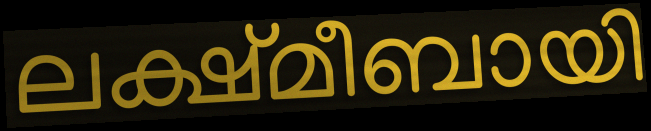
ലക്ഷ്മീബായി